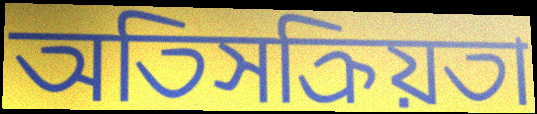
অতিসক্রিয়তা